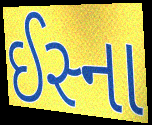
ઈસ્ના